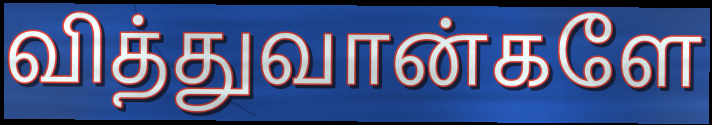
வித்துவான்களே